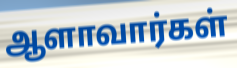
ஆளாவார்கள்